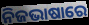
ନିଜଭାଷାରେ